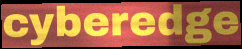
cyberedge